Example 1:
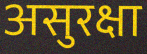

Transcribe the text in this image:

असुरक्षा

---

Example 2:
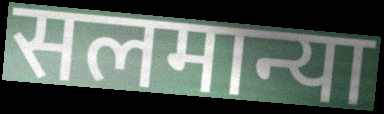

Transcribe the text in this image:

सलमान्या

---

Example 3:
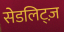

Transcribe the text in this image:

सेडलिट्ज़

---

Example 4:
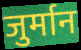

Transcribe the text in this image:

जुर्मान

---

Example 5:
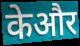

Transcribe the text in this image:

केऔर